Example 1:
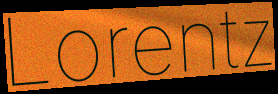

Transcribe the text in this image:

Lorentz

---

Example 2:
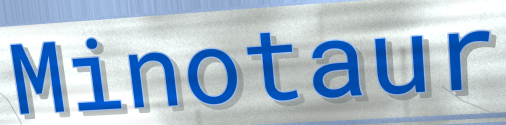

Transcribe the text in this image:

Minotaur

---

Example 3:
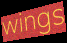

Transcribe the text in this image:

wings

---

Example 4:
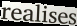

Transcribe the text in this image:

realises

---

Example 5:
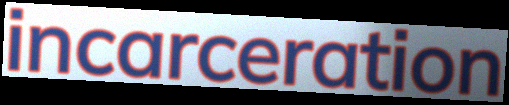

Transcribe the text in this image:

incarceration